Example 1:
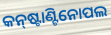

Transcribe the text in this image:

କନ୍‌ଷ୍ଟାଣ୍ଟିନୋପଲ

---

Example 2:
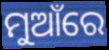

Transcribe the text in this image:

ମୁଆଁରେ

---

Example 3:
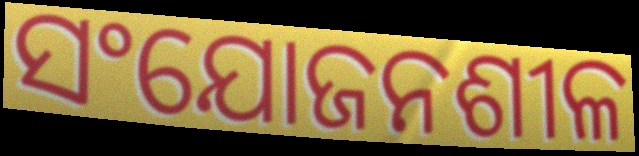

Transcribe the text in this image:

ସଂଯୋଜନଶୀଳ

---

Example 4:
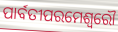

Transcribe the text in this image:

ପାର୍ବତୀପରମେଶ୍ଵରୌ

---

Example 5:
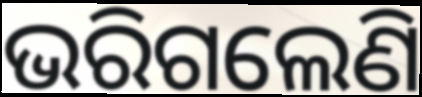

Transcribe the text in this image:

ଭରିଗଲେଣି